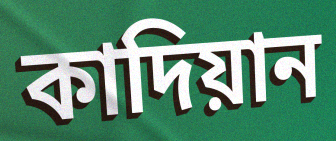
কাদিয়ান